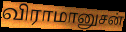
விராமானுசன்